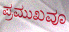
ಪ್ರಮುಖವೂ